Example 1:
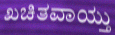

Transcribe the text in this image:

ಖಚಿತವಾಯ್ತು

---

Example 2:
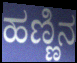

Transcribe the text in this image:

ಹಣ್ಣಿನ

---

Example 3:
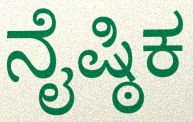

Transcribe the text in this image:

ನೈಷ್ಠಿಕ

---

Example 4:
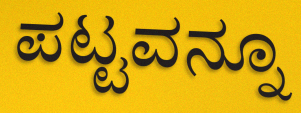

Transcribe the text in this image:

ಪಟ್ಟವನ್ನೂ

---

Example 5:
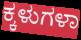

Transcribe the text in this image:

ಕ್ಕಳುಗಳಾ